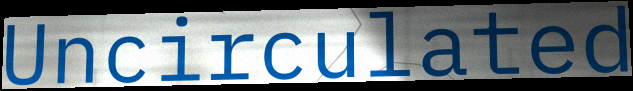
Uncirculated